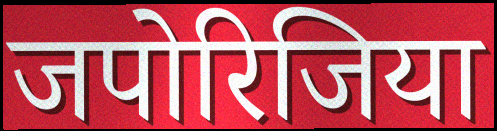
जपोरिजिया